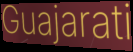
Guajarati